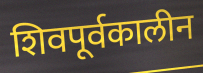
शिवपूर्वकालीन